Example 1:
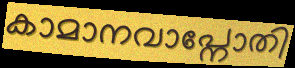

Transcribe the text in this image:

കാമാനവാപ്നോതി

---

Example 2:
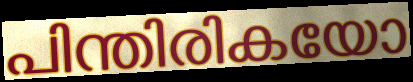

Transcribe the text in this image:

പിന്തിരികയോ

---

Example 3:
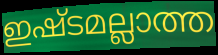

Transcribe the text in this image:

ഇഷ്ടമല്ലാത്ത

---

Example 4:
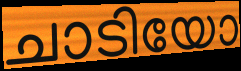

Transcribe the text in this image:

ചാടിയോ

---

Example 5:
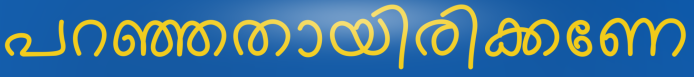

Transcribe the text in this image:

പറഞ്ഞതായിരിക്കണേ